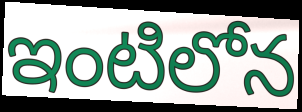
ఇంటిలోన